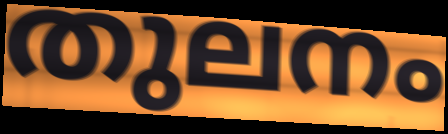
തുലനം